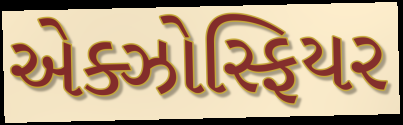
એક્ઝોસ્ફિયર